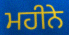
ਮਹੀਨੇ